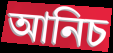
আনিচ